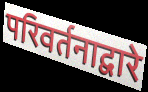
परिवर्तनाद्वारे